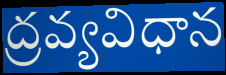
ద్రవ్యవిధాన